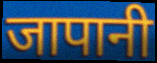
जापानी